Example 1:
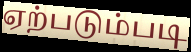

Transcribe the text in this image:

ஏற்படும்படி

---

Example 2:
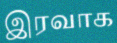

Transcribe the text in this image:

இரவாக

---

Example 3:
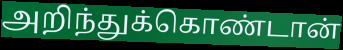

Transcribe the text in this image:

அறிந்துக்கொண்டான்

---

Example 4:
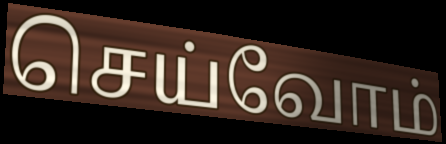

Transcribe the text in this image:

செய்வோம்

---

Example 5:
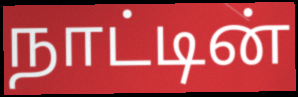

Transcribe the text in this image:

நாட்டின்